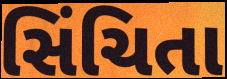
સિંચિતા